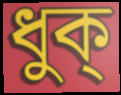
ধুক্